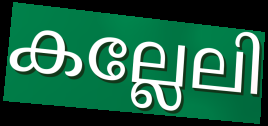
കല്ലേലി